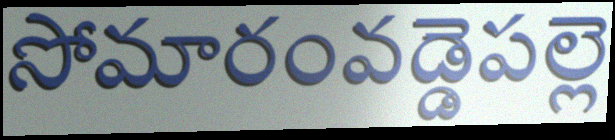
సోమారంవడ్డెపల్లె